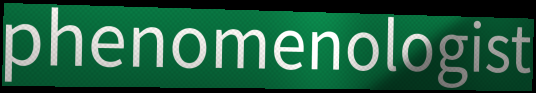
phenomenologist